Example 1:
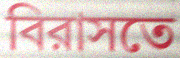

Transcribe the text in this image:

বিরাসতে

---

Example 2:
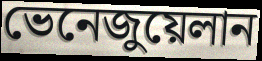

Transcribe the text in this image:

ভেনেজুয়েলান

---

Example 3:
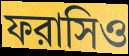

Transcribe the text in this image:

ফরাসিও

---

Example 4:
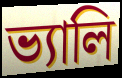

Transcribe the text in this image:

ভ্যালি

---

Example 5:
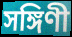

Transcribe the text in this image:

সঙ্গিণী